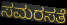
ಸಮರಸತೆ